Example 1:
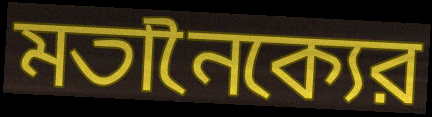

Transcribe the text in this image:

মতানৈক্যের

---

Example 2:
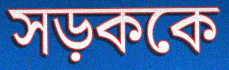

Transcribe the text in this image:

সড়ককে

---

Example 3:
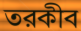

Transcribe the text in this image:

তরকীব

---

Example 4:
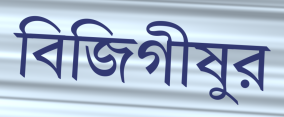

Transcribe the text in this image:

বিজিগীষুর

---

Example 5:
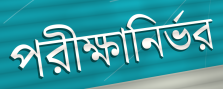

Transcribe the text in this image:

পরীক্ষানির্ভর